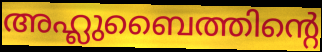
അഹ്ലുബൈത്തിന്റെ